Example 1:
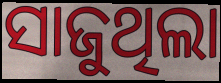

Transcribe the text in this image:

ସାଜୁଥିଲା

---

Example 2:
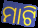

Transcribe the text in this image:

ମାଟି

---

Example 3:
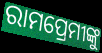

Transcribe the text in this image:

ରାମପ୍ରେମୀଙ୍କୁ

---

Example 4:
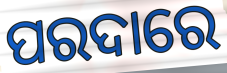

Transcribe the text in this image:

ପରଦାରେ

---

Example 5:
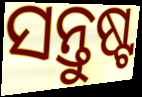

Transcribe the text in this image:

ସନ୍ତୁଷ୍ଟ